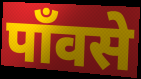
पाँवसे